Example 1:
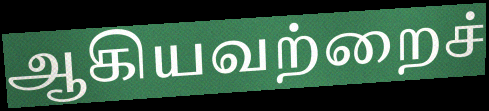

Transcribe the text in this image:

ஆகியவற்றைச்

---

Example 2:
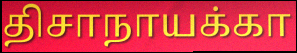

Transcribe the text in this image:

திசாநாயக்கா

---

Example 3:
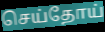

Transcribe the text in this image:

செய்தோய்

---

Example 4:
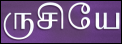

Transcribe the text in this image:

ருசியே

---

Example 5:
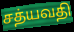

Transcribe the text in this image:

சத்யவதி